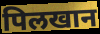
पिलखान